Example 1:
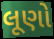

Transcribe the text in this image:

લૂણો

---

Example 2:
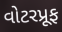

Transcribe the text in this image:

વોટરપ્રૂફ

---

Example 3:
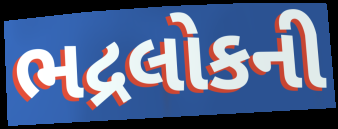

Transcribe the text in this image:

ભદ્રલોકની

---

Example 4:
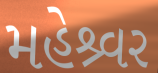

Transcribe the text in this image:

મહેશ્ર્વર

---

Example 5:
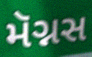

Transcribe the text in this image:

મૅગ્નસ